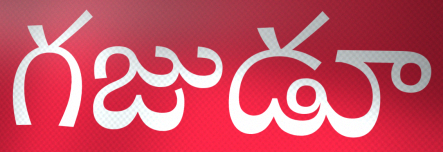
గజుడూ